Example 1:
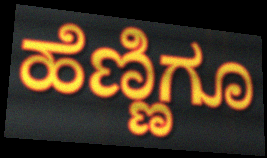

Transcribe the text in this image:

ಹೆಣ್ಣಿಗೂ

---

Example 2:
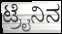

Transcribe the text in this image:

ಟ್ರೈನಿನ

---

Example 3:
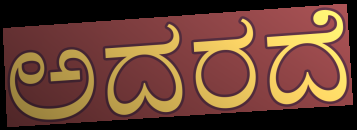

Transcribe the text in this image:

ಅದರದೆ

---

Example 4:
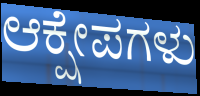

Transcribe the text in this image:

ಆಕ್ಷೇಪಗಳು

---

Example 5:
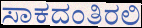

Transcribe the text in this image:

ಸಾಕದಂತಿರಲಿ